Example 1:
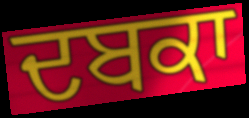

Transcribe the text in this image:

ਦਬਕਾ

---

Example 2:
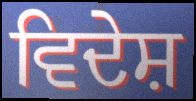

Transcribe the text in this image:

ਵਿਦੇਸ਼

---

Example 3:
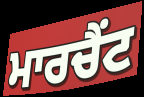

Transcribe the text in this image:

ਮਾਰਚੈਂਟ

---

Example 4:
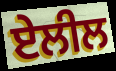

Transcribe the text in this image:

ਏਲੀਲ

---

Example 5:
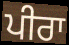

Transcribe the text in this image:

ਪੀਰਾ